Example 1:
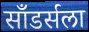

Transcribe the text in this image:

साँडर्सला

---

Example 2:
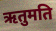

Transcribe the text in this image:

ऋतुमति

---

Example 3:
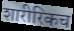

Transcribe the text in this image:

शारीरिकच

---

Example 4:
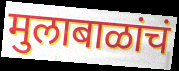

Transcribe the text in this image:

मुलाबाळांचं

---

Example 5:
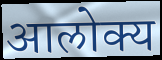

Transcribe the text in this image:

आलोक्य